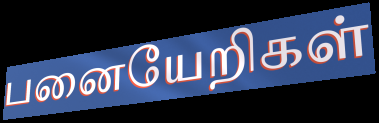
பனையேறிகள்